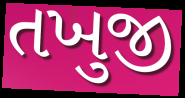
તખુજી